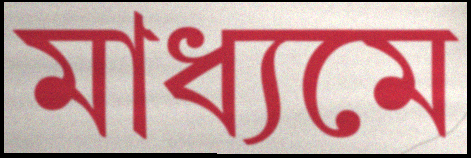
মাধ্যমে